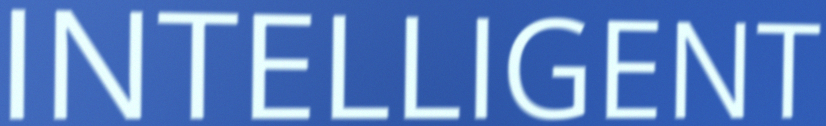
INTELLIGENT